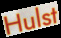
Hulst